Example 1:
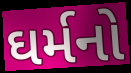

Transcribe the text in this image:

ઘર્મનો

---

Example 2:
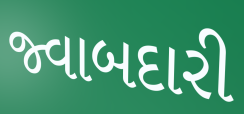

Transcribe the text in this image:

જ્વાબદારી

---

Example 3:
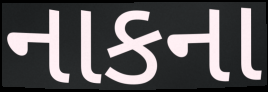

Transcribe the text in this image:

નાકના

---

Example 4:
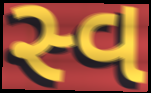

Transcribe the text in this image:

સ્વ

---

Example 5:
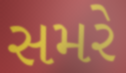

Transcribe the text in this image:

સમરે